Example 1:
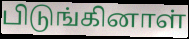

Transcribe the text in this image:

பிடுங்கினாள்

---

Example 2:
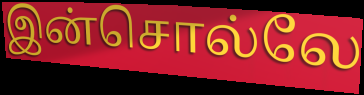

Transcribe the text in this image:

இன்சொல்லே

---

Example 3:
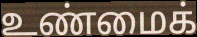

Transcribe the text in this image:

உண்மைக்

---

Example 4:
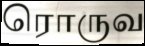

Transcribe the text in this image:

ரொருவ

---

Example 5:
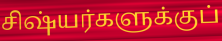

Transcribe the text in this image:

சிஷ்யர்களுக்குப்